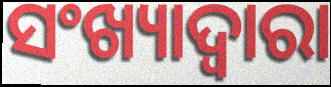
ସଂଖ୍ୟାଦ୍ଵାରା